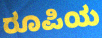
ರೂಪಿಯ